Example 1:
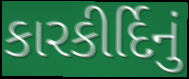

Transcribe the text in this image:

કારકીર્દિનું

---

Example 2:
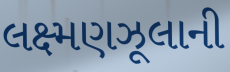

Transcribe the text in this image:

લક્ષ્મણઝૂલાની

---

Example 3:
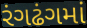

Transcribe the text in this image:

રંગઢંગમાં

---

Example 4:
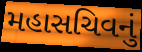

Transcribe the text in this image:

મહાસચિવનું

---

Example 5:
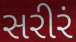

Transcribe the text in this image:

સરીરં